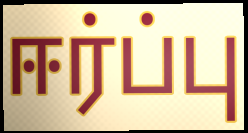
ஈர்ப்பு